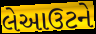
લેઆઉટને